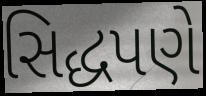
સિદ્ધપણે